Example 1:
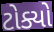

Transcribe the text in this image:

ટોક્યો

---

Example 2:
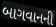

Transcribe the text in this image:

બાગવાનની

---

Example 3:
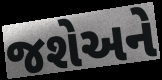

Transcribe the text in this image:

જશેઅને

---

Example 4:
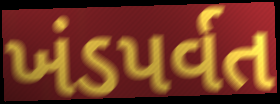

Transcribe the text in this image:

ખંડપર્વત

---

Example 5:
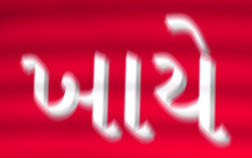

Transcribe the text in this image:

ખાયે